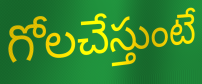
గోలచేస్తుంటే